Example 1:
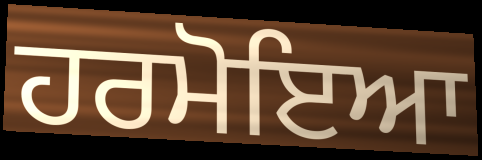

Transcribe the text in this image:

ਹਰਮੋਇਆ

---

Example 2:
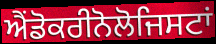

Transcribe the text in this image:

ਐਂਡੋਕਰੀਨੋਲੋਜਿਸਟਾਂ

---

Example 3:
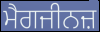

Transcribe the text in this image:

ਮੈਗਜੀਨਜ਼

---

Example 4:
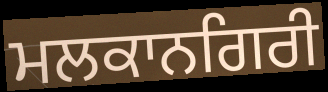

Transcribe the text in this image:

ਮਲਕਾਨਗਿਰੀ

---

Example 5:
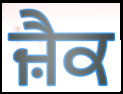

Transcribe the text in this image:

ਜ਼ੈਕ